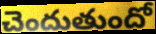
చెందుతుందో